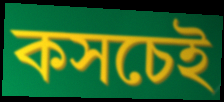
কসচেই